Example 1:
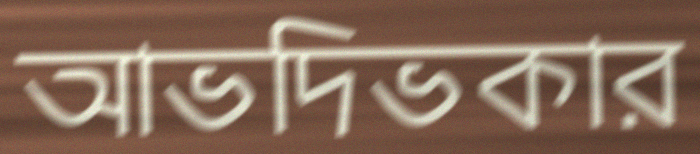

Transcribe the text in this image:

আভদিভকার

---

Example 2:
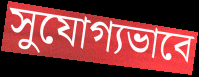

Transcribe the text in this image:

সুযোগ্যভাবে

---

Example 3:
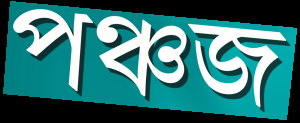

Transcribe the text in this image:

পঞ্চজ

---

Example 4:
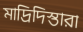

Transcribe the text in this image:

মাদ্রিদিস্তারা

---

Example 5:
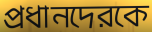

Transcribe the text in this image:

প্রধানদেরকে